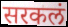
सरकलं